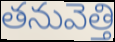
తనువెత్తి